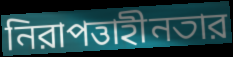
নিরাপত্তাহীনতার